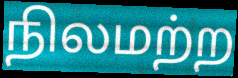
நிலமற்ற